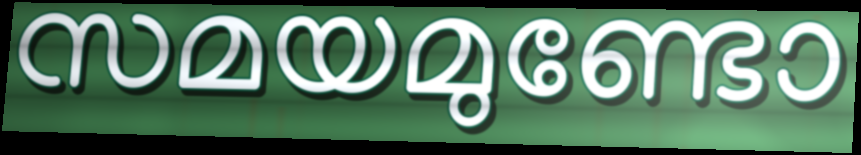
സമയമുണ്ടോ